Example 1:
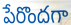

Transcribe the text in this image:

పేరొందగా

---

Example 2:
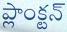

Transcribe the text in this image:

ప్లాంక్టన్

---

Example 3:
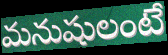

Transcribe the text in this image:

మనుషులంటే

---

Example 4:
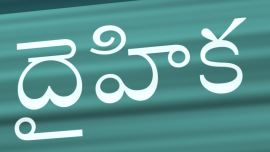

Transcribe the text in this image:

దైహిక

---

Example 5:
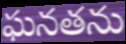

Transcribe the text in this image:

ఘనతను